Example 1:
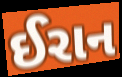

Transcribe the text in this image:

ઈરાન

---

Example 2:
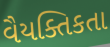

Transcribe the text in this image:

વૈયક્તિકતા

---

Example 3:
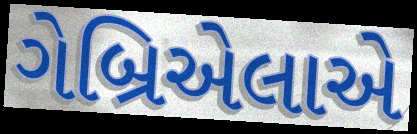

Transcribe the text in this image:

ગેબ્રિએલાએ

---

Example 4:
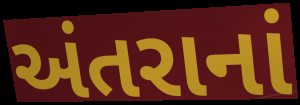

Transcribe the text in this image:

અંતરાનાં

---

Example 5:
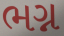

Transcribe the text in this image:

ભગ્ન